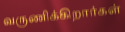
வருணிக்கிறார்கள்